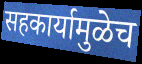
सहकार्यामुळेच